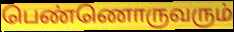
பெண்ணொருவரும்